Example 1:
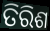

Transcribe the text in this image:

ତିରିଶ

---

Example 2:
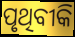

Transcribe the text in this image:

ପୃଥିବୀକି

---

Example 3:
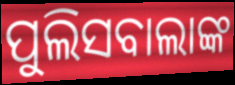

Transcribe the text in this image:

ପୁଲିସବାଲାଙ୍କ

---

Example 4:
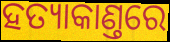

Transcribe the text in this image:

ହତ୍ୟାକାଣ୍ତରେ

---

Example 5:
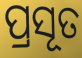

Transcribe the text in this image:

ପ୍ରସୂତ